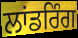
ਲਾਂਡਰਿੰਗ